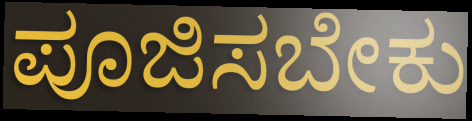
ಪೂಜಿಸಬೇಕು